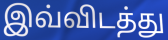
இவ்விடத்து